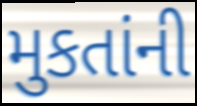
મુકતાંની